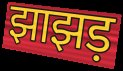
झाझड़